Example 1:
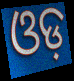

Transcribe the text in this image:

ଓଡ଼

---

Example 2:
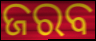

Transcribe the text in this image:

ଜରବ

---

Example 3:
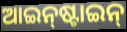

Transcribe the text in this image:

ଆଇନ୍‌ଷ୍ଟାଇନ୍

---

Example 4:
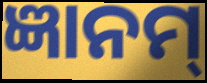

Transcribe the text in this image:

ଜ୍ଞାନମ୍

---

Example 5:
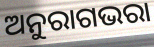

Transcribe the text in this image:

ଅନୁରାଗଭରା